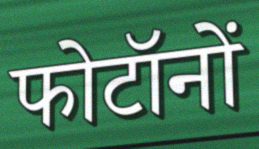
फोटॉनों